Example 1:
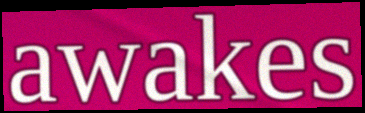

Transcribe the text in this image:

awakes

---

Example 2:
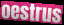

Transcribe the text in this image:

oestrus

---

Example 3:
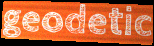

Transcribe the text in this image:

geodetic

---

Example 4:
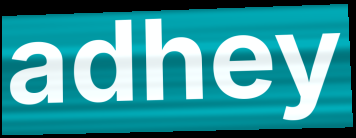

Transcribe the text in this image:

adhey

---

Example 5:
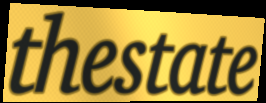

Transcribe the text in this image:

thestate